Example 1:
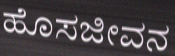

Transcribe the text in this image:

ಹೊಸಜೀವನ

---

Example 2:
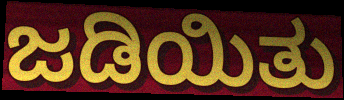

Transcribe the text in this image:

ಜಡಿಯಿತು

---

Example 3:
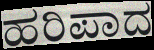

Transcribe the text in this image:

ಹರಿಪಾದ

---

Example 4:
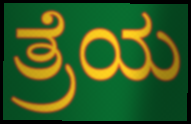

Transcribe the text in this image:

ತ್ರೆಯ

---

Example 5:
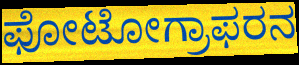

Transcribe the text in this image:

ಫೋಟೋಗ್ರಾಫರನ